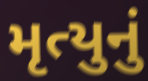
મૃત્યુનું